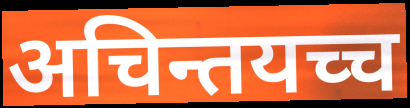
अचिन्तयच्च